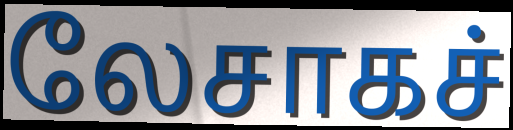
லேசாகச்